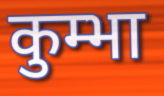
कुम्भा